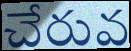
చేరువ